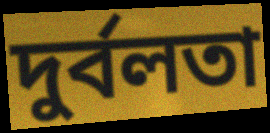
দুর্বলতা